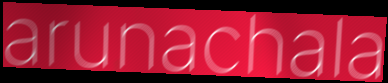
arunachala